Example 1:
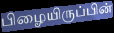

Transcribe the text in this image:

பிழையிருப்பின்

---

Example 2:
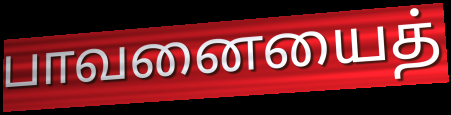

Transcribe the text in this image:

பாவனையைத்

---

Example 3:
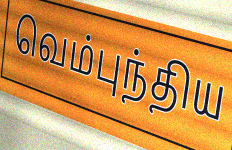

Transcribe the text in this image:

வெம்புந்திய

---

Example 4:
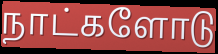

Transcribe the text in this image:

நாட்களோடு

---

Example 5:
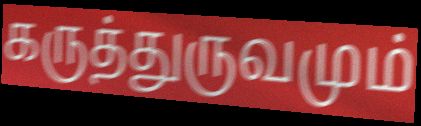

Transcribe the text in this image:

கருத்துருவமும்